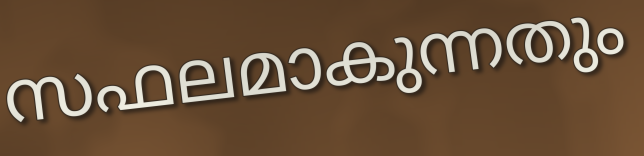
സഫലമാകുന്നതും